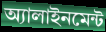
অ্যালাইনমেন্ট